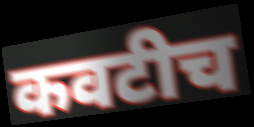
कवटीच